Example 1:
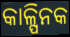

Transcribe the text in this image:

କାଳ୍ପିନକ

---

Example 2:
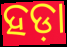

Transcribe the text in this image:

ହଡ଼ା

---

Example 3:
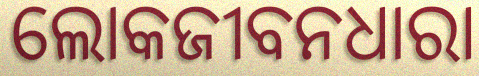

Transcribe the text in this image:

ଲୋକଜୀବନଧାରା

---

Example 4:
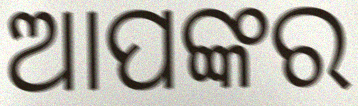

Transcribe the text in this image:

ଆପଙ୍କର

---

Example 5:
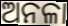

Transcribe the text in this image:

ଅନଳା